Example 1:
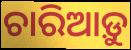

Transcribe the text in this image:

ଚାରିଆଡ଼ୁ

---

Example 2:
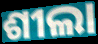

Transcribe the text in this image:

ଶୀଲା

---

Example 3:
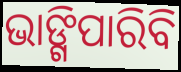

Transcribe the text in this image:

ଭାଙ୍ଗିପାରିବି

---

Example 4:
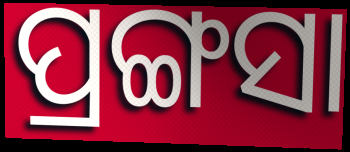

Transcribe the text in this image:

ପ୍ରଙ୍ଗସା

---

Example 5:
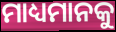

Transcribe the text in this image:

ମାଧ୍ୟମାନକୁ